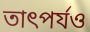
তাৎপর্যও